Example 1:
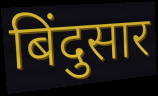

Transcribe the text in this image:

बिंदुसार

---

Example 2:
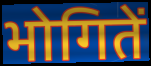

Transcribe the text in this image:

भोगितें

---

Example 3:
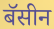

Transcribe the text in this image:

बॅसीन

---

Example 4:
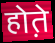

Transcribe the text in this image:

होत़े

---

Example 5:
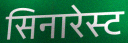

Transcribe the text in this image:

सिनारेस्ट